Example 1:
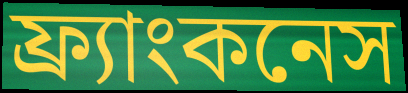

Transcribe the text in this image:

ফ্র্যাংকনেস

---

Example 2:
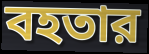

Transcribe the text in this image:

বহতার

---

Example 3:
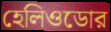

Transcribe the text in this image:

হেলিওডোর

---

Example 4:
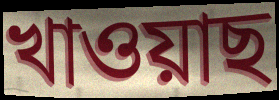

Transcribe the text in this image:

খাওয়াছ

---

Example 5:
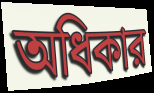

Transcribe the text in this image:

অধিকার